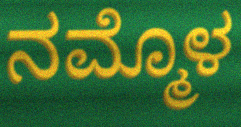
ನಮ್ಮೊಳ